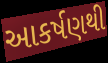
આકર્ષણથી